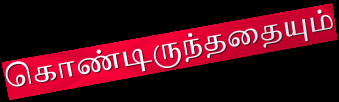
கொண்டிருந்ததையும்